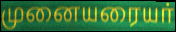
முனையரையர்